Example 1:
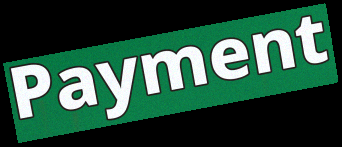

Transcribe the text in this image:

Payment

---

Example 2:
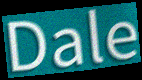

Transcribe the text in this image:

Dale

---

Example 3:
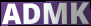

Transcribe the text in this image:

ADMK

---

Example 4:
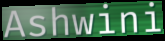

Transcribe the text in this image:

Ashwini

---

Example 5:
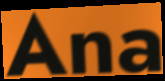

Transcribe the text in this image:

Ana